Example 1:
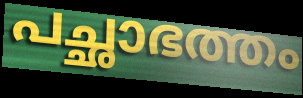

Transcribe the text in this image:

പച്ഛാഭത്തം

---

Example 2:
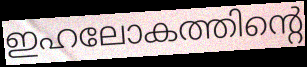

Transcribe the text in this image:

ഇഹലോകത്തിന്റെ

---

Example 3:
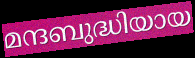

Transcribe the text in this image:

മന്ദബുദ്ധിയായ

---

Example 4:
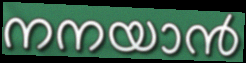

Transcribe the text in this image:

നനയാൻ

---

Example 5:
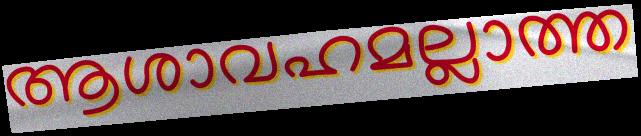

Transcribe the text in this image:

ആശാവഹമല്ലാത്ത